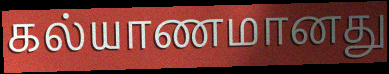
கல்யாணமானது